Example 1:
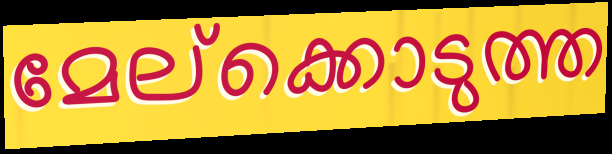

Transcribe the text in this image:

മേല്ക്കൊടുത്ത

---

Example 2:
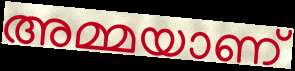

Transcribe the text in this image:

അമ്മയാണ്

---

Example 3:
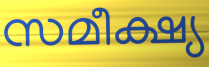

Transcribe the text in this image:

സമീക്ഷ്യ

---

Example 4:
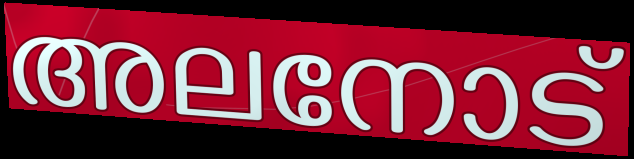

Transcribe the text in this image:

അലനോട്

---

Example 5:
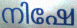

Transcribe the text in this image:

നിഷേ